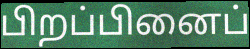
பிறப்பினைப்